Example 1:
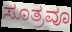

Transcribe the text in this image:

ಸೂತ್ರವೂ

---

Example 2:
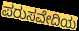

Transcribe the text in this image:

ಪರುಸವೇದಿಯ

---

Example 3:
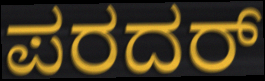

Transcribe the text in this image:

ಪರದರ್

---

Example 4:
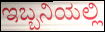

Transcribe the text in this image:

ಇಬ್ಬನಿಯಲ್ಲಿ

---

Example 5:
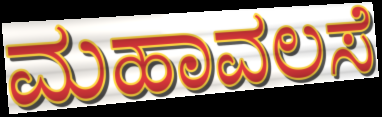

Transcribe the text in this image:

ಮಹಾವಲಸೆ